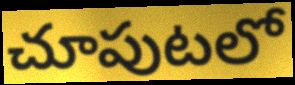
చూపుటలో